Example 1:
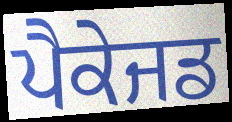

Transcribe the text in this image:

ਪੈਕੇਜਡ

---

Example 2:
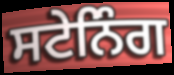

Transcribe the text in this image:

ਸਟੇਨਿੰਗ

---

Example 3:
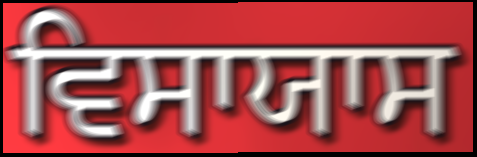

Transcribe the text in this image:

ਵਿਸਾਯਾਸ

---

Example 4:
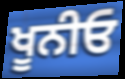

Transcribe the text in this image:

ਖੂਨੀਓ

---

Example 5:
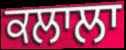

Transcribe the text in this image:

ਕਲਾਲਾ